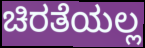
ಚಿರತೆಯಲ್ಲ